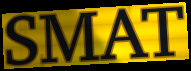
SMAT